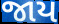
જાય